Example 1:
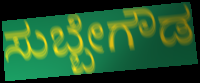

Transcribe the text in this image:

ಸುಬ್ಬೇಗೌಡ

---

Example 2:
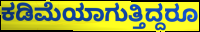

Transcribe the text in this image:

ಕಡಿಮೆಯಾಗುತ್ತಿದ್ದರೂ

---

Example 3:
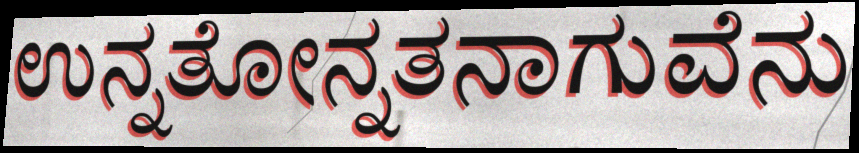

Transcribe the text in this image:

ಉನ್ನತೋನ್ನತನಾಗುವೆನು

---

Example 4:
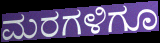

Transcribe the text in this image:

ಮರಗಳಿಗೂ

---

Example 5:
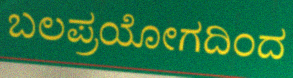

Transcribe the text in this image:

ಬಲಪ್ರಯೋಗದಿಂದ